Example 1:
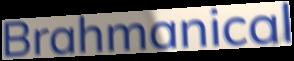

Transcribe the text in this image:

Brahmanical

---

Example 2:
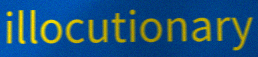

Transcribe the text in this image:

illocutionary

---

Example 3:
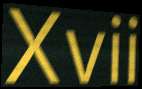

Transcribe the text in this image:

Xvii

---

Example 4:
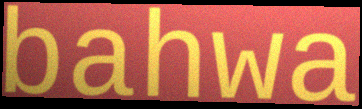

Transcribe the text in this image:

bahwa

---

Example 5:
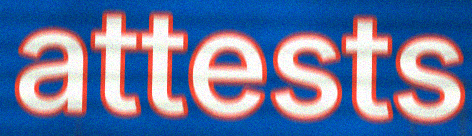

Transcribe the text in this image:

attests